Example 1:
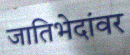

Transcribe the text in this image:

जातिभेदांवर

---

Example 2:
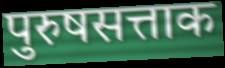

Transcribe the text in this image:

पुरुषसत्ताक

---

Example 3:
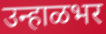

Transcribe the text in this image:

उन्हाळभर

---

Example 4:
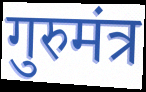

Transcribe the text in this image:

गुरुमंत्र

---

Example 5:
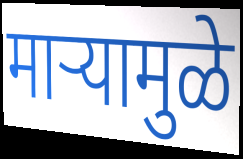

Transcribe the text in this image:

माऱ्यामुळे